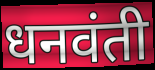
धनवंती